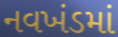
નવખંડમાં